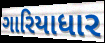
ગારિયાધાર